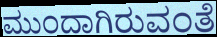
ಮುಂದಾಗಿರುವಂತೆ